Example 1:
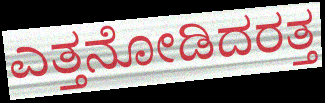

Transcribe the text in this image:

ಎತ್ತನೋಡಿದರತ್ತ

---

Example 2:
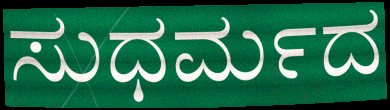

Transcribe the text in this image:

ಸುಧರ್ಮದ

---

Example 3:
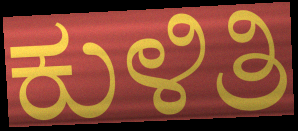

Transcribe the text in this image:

ಕುಳಿತಿ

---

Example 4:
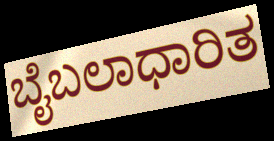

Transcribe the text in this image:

ಬೈಬಲಾಧಾರಿತ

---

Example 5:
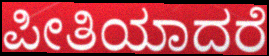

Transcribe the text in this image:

ಪೀತಿಯಾದರೆ